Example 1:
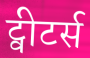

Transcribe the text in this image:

ट्वीटर्स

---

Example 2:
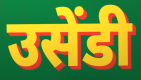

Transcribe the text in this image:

उसेंडी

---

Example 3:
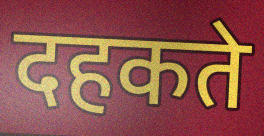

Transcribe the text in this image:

दहकते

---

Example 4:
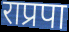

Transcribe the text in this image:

राप्रपा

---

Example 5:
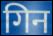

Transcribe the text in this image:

गिन